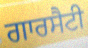
ਗਾਰਸੈਟੀ